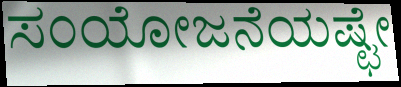
ಸಂಯೋಜನೆಯಷ್ಟೇ